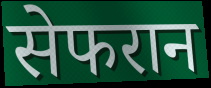
सेफरान